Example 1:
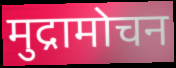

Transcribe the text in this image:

मुद्रामोचन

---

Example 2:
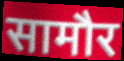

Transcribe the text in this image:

सामौर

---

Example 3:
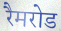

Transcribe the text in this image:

रैमरोड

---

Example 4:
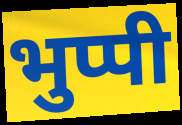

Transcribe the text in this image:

भुप्पी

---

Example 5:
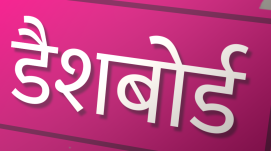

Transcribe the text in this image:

डैशबोर्ड